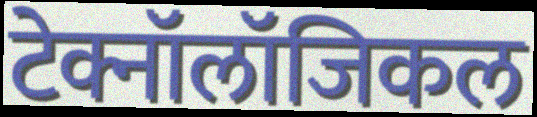
टेक्नॉलॉजिकल